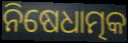
ନିଷେଧାତ୍ମକ